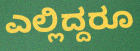
ಎಲ್ಲಿದ್ದರೂ